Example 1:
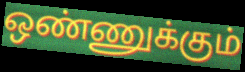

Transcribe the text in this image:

ஒண்ணுக்கும்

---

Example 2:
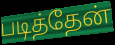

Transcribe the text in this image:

படித்தேன்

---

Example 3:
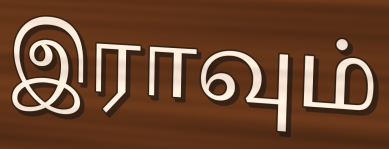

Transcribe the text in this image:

இராவும்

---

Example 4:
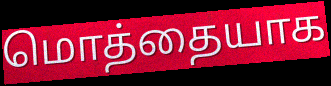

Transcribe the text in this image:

மொத்தையாக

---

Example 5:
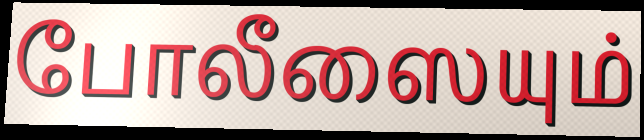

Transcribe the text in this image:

போலீஸையும்